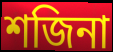
শজিনা